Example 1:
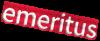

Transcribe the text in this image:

emeritus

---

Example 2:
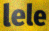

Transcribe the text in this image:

lele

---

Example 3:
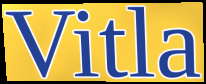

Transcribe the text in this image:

Vitla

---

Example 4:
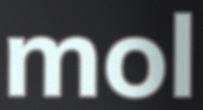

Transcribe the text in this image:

mol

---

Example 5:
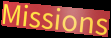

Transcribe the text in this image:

Missions